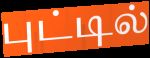
புட்டில்